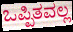
ಒಪ್ಪಿತವಲ್ಲ